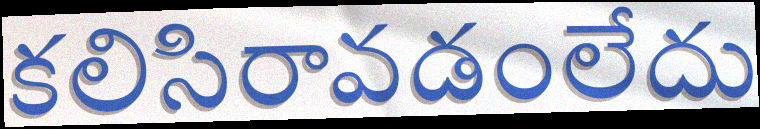
కలిసిరావడంలేదు